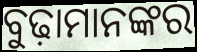
ବୁଢ଼ାମାନଙ୍କର